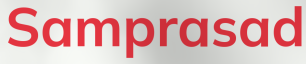
Samprasad